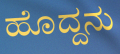
ಹೊದ್ದನು